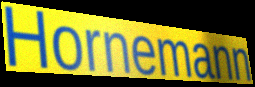
Hornemann